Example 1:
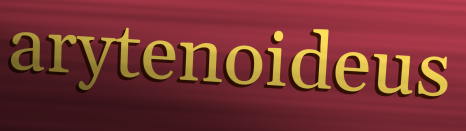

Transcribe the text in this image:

arytenoideus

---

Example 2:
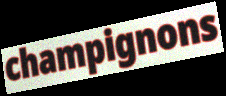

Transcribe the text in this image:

champignons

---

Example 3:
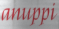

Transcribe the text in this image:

anuppi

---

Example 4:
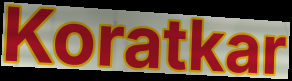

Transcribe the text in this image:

Koratkar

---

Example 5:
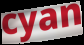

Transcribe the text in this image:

cyan